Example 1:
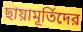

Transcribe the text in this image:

ছায়ামূর্তিদের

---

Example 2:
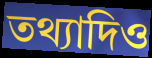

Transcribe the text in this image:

তথ্যাদিও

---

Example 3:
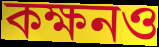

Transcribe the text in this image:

কক্ষনও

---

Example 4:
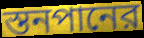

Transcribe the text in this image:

স্তনপানের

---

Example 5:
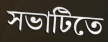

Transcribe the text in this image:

সভাটিতে